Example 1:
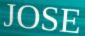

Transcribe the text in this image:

JOSE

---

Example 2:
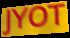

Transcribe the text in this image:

JYOT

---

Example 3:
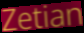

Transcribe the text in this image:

Zetian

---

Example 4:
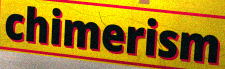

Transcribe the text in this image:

chimerism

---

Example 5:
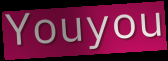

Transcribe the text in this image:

Youyou